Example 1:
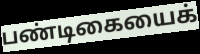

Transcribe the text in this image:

பண்டிகையைக்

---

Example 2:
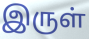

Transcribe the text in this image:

இருள்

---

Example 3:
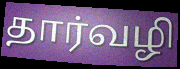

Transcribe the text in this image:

தார்வழி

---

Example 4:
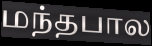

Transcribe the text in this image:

மந்தபால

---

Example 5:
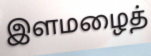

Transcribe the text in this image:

இளமழைத்